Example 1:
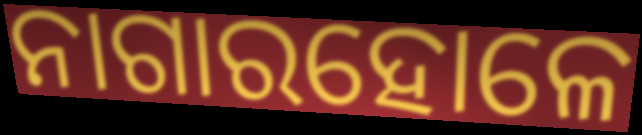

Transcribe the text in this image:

ନାଗାରହୋଳେ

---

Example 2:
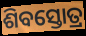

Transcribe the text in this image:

ଶିବସ୍ତୋତ୍ର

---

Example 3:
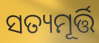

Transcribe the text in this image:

ସତ୍ୟମୂର୍ତ୍ତି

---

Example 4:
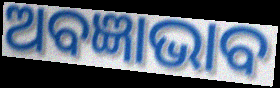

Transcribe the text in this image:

ଅବଜ୍ଞାଭାବ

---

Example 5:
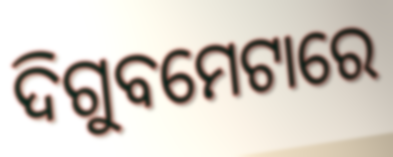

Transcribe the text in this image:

ଦିଗୁବମେଟାରେ